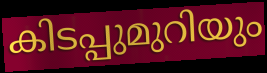
കിടപ്പുമുറിയും